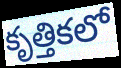
కృత్తికలో